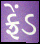
ફ્રેંડ